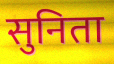
सुनिता